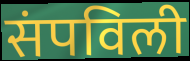
संपविली